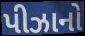
પીઝાનો